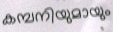
കമ്പനിയുമായും